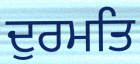
ਦੁਰਮਤਿ